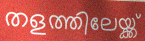
തളത്തിലേയ്ക്ക്